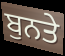
ਬੁਨਤੇ